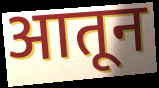
आतून